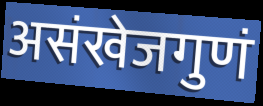
असंखेजगुणं